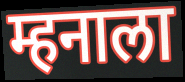
म्हनाला